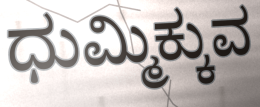
ಧುಮ್ಮಿಕ್ಕುವ